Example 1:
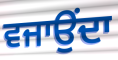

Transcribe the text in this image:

ਵਜਾਉਂਦਾ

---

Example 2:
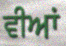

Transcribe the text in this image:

ਵੀਆਂ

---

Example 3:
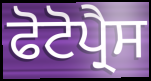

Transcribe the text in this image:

ਫੋਟੋਪ੍ਰੈਸ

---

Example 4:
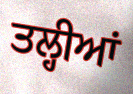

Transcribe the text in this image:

ਤਲ੍ਹੀਆਂ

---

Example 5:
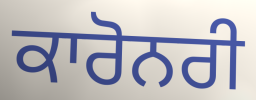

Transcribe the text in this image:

ਕਾਰੋਨਰੀ